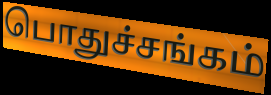
பொதுச்சங்கம்